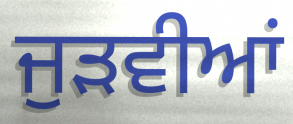
ਜੁੜਵੀਆਂ